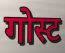
गोस्ट